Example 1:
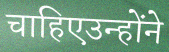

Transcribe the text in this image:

चाहिएउन्होंने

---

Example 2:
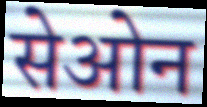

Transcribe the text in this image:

सेओन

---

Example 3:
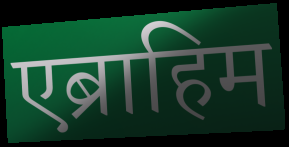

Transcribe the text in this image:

एब्राहिम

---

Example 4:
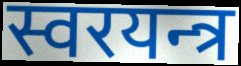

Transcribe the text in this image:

स्वरयन्त्र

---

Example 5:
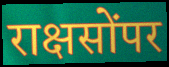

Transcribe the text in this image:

राक्षसोंपर